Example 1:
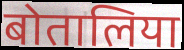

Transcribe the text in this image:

बोतालिया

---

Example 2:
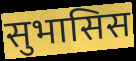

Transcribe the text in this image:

सुभासिस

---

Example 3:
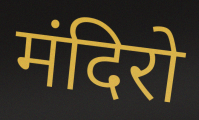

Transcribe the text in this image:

मंदिरो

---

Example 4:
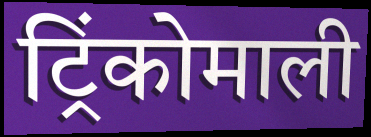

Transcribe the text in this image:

ट्रिंकोमाली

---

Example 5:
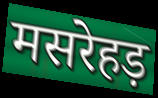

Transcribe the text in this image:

मसरेहड़